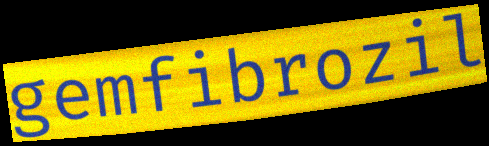
gemfibrozil